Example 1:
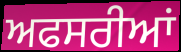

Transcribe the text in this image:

ਅਫਸਰੀਆਂ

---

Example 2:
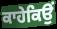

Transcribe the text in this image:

ਕਾਹੇਕਿਉਂ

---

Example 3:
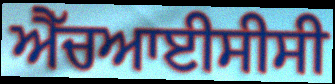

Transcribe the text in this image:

ਐੱਚਆਈਸੀਸੀ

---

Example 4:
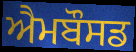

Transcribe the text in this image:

ਐਮਬੌਸਡ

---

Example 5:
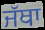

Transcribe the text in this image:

ਜੱਥਾ